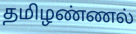
தமிழண்ணல்